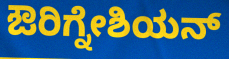
ಔರಿಗ್ನೇಶಿಯನ್